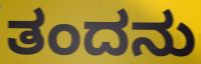
ತಂದನು